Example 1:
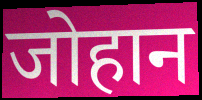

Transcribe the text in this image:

जोहान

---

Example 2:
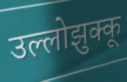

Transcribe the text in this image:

उल्लोझुक्कू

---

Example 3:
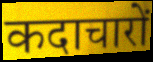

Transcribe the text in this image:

कदाचारों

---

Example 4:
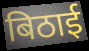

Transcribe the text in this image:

बिठाई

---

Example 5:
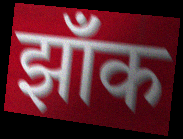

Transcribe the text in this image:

झाँक